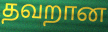
தவறான